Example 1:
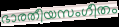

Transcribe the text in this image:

ഭാരതീയസംഗീതം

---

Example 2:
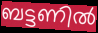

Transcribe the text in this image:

ബട്ടണിൽ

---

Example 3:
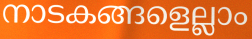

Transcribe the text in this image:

നാടകങ്ങളെല്ലാം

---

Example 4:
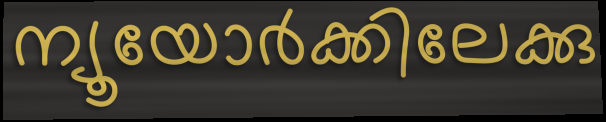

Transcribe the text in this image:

ന്യൂയോർക്കിലേക്കു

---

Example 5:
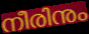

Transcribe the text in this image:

നീരിനും